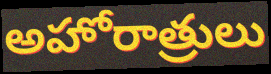
అహోరాత్రులు